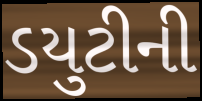
ડયુટીની